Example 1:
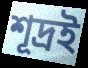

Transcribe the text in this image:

শূদ্ৰই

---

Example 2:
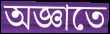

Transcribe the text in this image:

অজ্ঞাতে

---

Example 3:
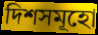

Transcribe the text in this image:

দিশসমূহো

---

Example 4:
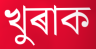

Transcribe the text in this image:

খুৰাক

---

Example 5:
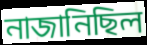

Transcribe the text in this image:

নাজানিছিল